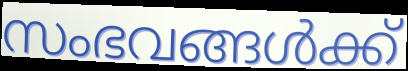
സംഭവങ്ങൾക്ക്